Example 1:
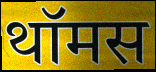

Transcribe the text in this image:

थॉमस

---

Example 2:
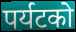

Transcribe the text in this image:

पर्यटको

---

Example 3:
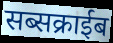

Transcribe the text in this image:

सब्सक्राईब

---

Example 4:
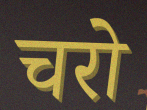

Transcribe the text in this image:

चरो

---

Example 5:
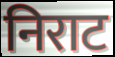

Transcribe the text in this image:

निराट